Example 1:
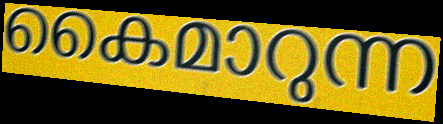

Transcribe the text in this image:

കൈമാറുന്ന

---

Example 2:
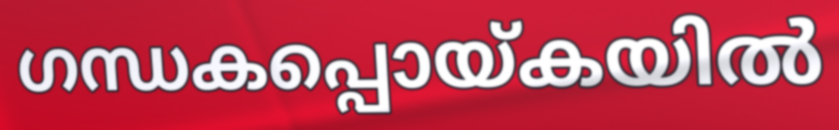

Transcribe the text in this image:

ഗന്ധകപ്പൊയ്കയിൽ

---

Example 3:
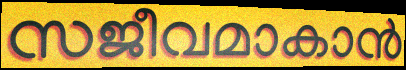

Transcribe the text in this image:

സജീവമാകാൻ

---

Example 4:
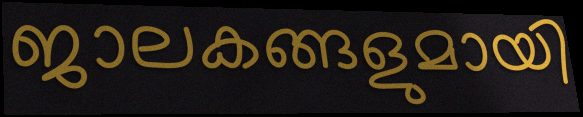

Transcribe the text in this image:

ജാലകങ്ങളുമായി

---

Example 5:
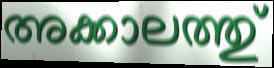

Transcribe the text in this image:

അക്കാലത്തു്